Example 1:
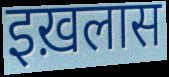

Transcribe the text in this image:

इख़लास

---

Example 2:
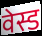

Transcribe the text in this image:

वेस्ड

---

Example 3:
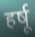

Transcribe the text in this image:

हर्षू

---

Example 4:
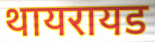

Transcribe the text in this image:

थायरायड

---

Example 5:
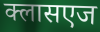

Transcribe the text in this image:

क्लासएज